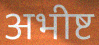
अभीष्ट